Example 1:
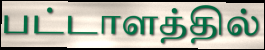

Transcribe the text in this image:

பட்டாளத்தில்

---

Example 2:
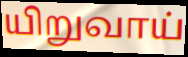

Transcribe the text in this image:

யிறுவாய்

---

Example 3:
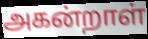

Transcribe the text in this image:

அகன்றாள்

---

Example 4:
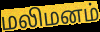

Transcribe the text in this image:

மலிமனம்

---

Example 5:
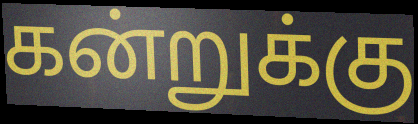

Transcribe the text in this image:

கன்றுக்கு